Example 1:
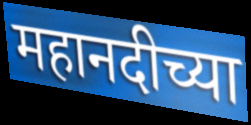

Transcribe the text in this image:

महानदीच्या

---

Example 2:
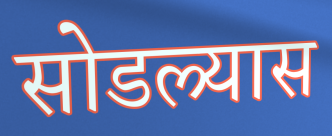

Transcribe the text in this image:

सोडल्यास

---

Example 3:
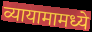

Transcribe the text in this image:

व्यायामामध्ये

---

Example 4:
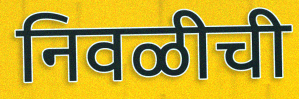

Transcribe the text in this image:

निवळीची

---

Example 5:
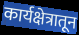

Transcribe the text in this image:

कार्यक्षेत्रातून